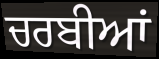
ਚਰਬੀਆਂ